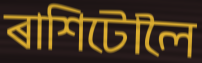
ৰাশিটোলৈ